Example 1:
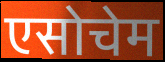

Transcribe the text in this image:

एसोचेम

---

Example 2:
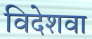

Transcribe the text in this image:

विदेशवा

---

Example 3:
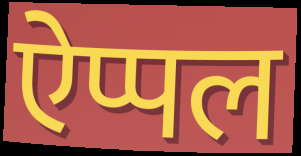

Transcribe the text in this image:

ऐप्पल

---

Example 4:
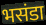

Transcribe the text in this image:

भसंडा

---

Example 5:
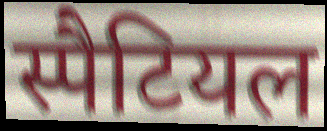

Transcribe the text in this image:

स्पैटियल